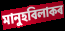
মানুহবিলাকৰ